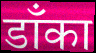
डाँका